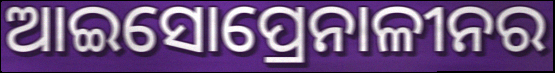
ଆଇସୋପ୍ରେନାଳୀନର